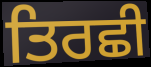
ਤਿਰਛੀ